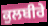
ਕੁਲਬੀਰੇ